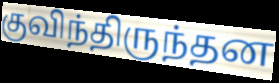
குவிந்திருந்தன